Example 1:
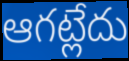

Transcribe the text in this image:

ఆగట్లేదు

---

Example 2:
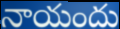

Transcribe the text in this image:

నాయందు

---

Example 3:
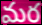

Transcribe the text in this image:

మర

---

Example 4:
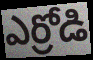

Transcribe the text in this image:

ఎర్రోడి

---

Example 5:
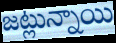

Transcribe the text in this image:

జట్లున్నాయి